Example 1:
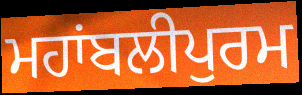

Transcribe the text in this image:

ਮਹਾਂਬਲੀਪੁਰਮ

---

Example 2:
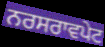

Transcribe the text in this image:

ਨਰਸਰਾਵਪੇਟ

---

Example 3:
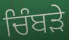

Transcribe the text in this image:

ਚਿੰਬਡ਼ੇ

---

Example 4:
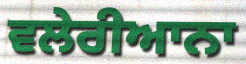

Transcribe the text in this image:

ਵਲੇਰੀਆਨਾ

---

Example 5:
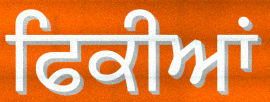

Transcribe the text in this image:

ਫਿਕੀਆਂ